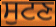
ਸੁਟਣ